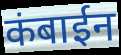
कंबाईन